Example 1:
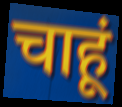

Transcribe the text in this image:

चाहूं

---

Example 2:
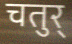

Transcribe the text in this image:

चतुर्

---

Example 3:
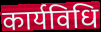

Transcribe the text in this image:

कार्यविधि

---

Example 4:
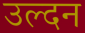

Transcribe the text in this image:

उल्दन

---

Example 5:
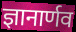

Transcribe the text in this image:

ज्ञानार्णव